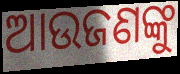
ଆଉଜଣଙ୍କୁ